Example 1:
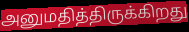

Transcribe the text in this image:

அனுமதித்திருக்கிறது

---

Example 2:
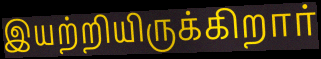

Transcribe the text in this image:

இயற்றியிருக்கிறார்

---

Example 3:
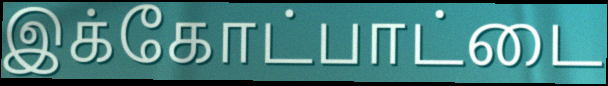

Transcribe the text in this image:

இக்கோட்பாட்டை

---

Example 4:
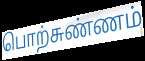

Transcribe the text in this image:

பொற்சுண்ணம்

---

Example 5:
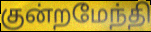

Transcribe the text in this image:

குன்றமேந்தி